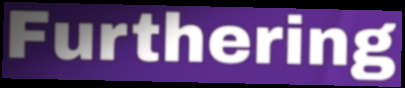
Furthering